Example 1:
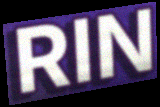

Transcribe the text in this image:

RIN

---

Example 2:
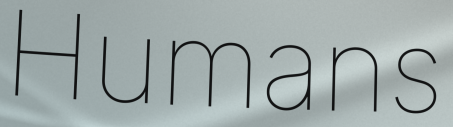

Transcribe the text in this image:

Humans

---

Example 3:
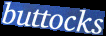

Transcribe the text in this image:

buttocks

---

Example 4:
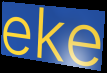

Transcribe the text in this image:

eke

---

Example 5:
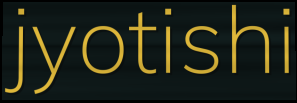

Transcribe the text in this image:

jyotishi